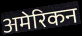
अमेरिकन